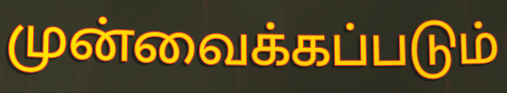
முன்வைக்கப்படும்